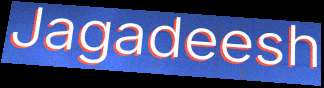
Jagadeesh